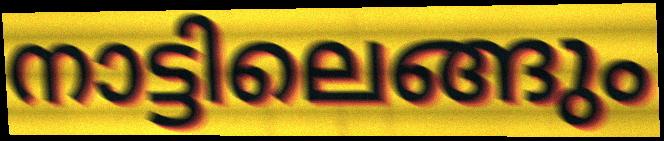
നാട്ടിലെങ്ങും